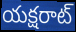
యక్షరాట్